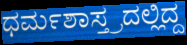
ಧರ್ಮಶಾಸ್ತ್ರದಲ್ಲಿದ್ದ